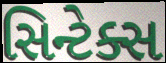
સિન્ટેક્સ